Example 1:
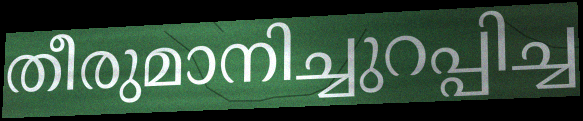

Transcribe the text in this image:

തീരുമാനിച്ചുറപ്പിച്ച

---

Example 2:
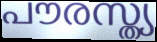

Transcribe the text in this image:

പൗരസ്ത്യ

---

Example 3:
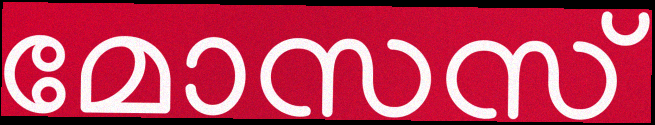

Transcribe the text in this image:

മോസസ്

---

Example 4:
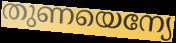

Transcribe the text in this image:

തുണയെന്യേ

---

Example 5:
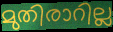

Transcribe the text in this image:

മുതിരാറില്ല